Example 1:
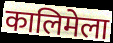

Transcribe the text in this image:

कालिमेला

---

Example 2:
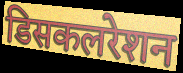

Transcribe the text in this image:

डिसकलरेशन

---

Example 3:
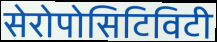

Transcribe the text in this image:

सेरोपोसिटिविटी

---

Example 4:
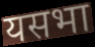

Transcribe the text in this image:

यसभा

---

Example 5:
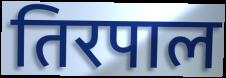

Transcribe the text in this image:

तिरपाल